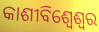
କାଶୀବିଶ୍ୱେଶ୍ୱର